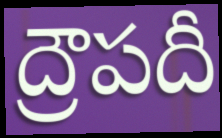
ద్రౌపదీ